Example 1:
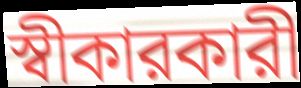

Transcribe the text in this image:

স্বীকারকারী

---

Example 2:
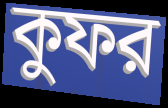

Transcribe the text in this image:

কুফর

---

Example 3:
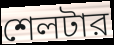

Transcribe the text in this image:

শেলটার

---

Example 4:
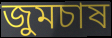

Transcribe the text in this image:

জুমচাষ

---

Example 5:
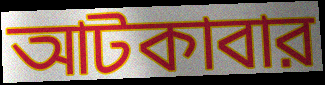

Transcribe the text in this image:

আটকাবার